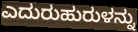
ಎದುರುಹುರುಳನ್ನು